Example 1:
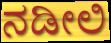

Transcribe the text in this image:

ನಡೀಲಿ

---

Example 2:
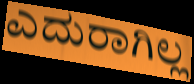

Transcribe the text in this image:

ಎದುರಾಗಿಲ್ಲ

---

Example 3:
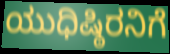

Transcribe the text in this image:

ಯುಧಿಷ್ಠಿರನಿಗೆ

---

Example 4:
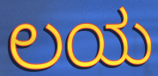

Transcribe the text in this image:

ಲಯ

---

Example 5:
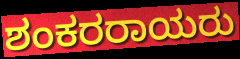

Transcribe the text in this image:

ಶಂಕರರಾಯರು